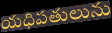
యధిపతులును